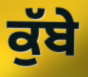
ਕੁੱਬੇ